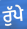
ਰੁੱਪੇ